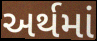
અર્થમાં